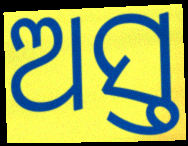
ଅସ୍ତ